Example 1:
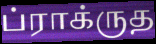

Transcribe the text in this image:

ப்ராக்ருத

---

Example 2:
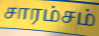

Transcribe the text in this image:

சாரம்சம்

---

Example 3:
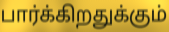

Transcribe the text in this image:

பார்க்கிறதுக்கும்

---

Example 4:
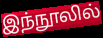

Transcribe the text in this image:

இந்நூலில்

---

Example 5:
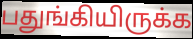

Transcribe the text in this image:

பதுங்கியிருக்க